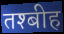
तश्बीह